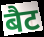
बैट